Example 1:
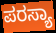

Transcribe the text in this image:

ಪರಸ್ಯಾ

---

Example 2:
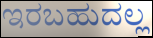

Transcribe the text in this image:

ಇರಬಹುದಲ್ಲ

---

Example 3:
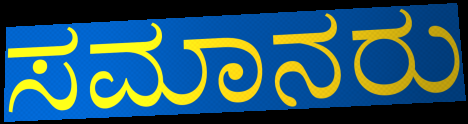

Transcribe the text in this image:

ಸಮಾನರು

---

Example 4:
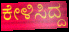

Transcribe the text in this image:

ಕೇಳಿಸಿದ್ದ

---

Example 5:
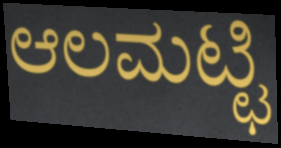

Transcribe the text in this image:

ಆಲಮಟ್ಟಿ